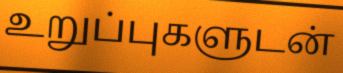
உறுப்புகளுடன்